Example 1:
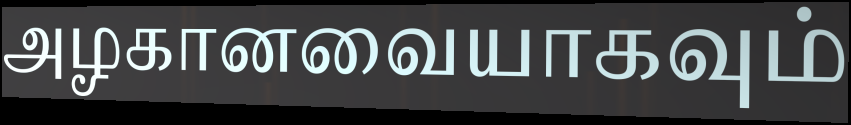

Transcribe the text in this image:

அழகானவையாகவும்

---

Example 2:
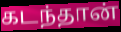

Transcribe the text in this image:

கடந்தான்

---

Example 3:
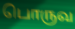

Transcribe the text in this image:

பொருவ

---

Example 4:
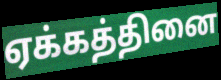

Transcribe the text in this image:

ஏக்கத்தினை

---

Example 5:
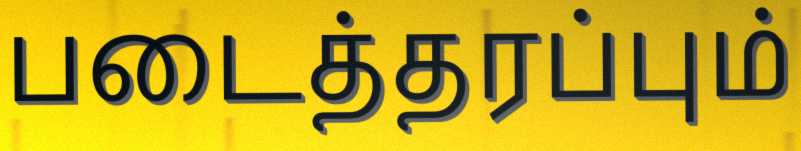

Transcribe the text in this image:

படைத்தரப்பும்